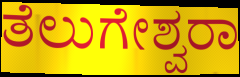
ತೆಲುಗೇಶ್ವರಾ